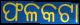
ଫଳକଟା